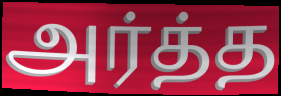
அர்த்த